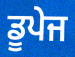
ਡੂਪੇਜ